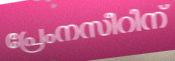
പ്രേംനസീറിന്